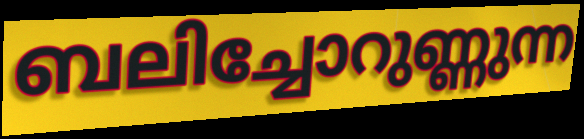
ബലിച്ചോറുണ്ണുന്ന